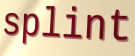
splint